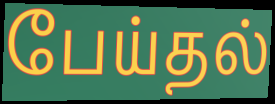
பேய்தல்